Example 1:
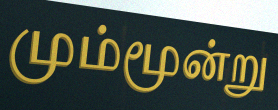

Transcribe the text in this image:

மும்மூன்று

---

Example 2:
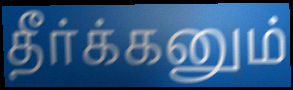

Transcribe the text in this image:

தீர்க்கனும்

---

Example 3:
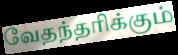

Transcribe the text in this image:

வேதந்தரிக்கும்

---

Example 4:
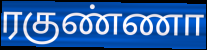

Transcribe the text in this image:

ரகுண்ணா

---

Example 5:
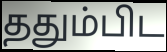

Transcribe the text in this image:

ததும்பிட